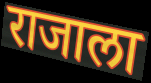
राजाला